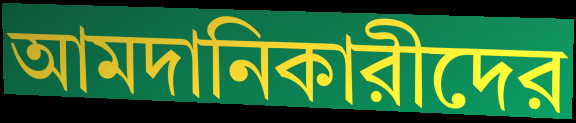
আমদানিকারীদের